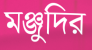
মঞ্জুদির